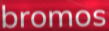
bromos